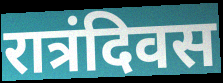
रात्रंदिवस